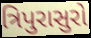
ત્રિપુરાસુરો